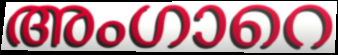
അംഗാറെ